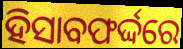
ହିସାବଫର୍ଦ୍ଦରେ